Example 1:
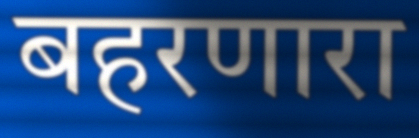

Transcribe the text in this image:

बहरणारा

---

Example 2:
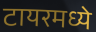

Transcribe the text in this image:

टायरमध्ये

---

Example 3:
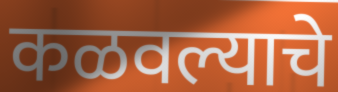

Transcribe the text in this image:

कळवल्याचे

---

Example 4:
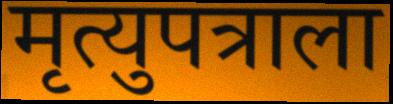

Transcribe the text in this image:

मृत्युपत्राला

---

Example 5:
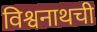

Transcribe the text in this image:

विश्वनाथची